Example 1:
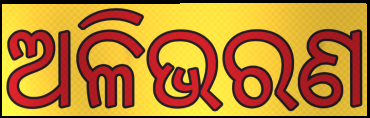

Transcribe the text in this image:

ଅଳିଭରଣ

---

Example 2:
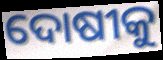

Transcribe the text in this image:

ଦୋଷୀକୁ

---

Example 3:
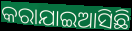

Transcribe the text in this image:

କରାଯାଇଆସିଛି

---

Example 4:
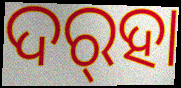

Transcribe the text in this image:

ଦର୍‌ହା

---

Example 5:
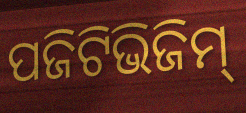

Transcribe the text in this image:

ପଜିଟିଭିଜିମ୍